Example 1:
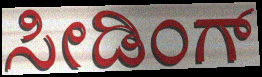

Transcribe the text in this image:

ಸೀಡಿಂಗ್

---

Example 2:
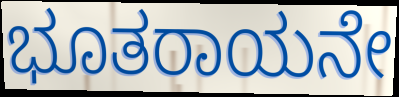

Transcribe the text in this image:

ಭೂತರಾಯನೇ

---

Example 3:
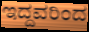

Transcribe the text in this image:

ಇದ್ದವರಿಂದ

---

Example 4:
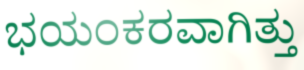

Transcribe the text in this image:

ಭಯಂಕರವಾಗಿತ್ತು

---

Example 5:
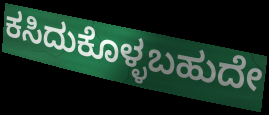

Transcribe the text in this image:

ಕಸಿದುಕೊಳ್ಳಬಹುದೇ